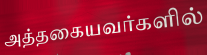
அத்தகையவர்களில்